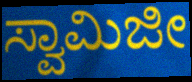
ಸ್ವಾಮಿಜೀ